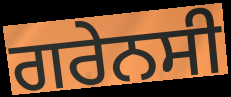
ਗਰੇਨਸੀ